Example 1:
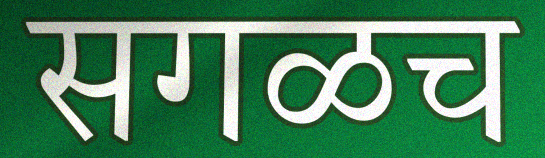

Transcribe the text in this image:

सगळच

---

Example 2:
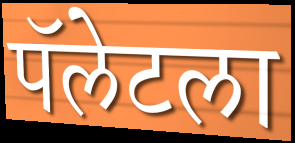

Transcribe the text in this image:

पॅलेटला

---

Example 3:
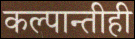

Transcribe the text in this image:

कल्पान्तीही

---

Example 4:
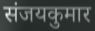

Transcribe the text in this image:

संजयकुमार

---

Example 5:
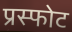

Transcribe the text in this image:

प्रस्फोट